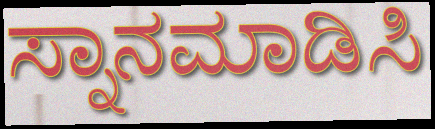
ಸ್ನಾನಮಾಡಿಸಿ